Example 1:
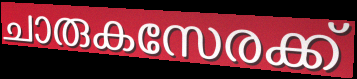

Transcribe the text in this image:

ചാരുകസേരക്ക്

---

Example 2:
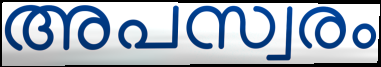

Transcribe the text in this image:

അപസ്വരം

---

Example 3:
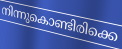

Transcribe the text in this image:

നിന്നുകൊണ്ടിരിക്കെ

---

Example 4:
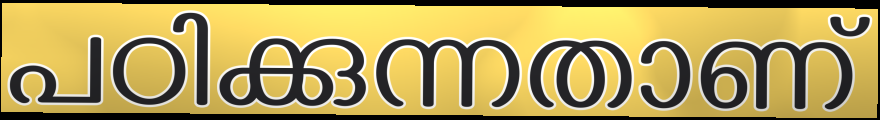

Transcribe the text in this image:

പഠിക്കുന്നതാണ്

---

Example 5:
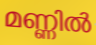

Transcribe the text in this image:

മണ്ണിൽ